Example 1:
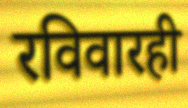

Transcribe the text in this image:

रविवारही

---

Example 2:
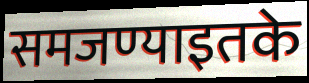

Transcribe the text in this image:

समजण्याइतके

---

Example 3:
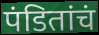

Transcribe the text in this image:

पंडितांचं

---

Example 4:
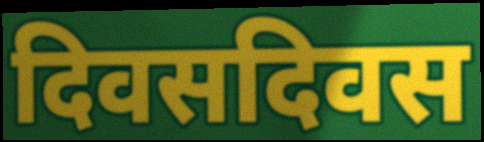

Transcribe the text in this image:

दिवसदिवस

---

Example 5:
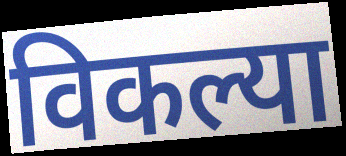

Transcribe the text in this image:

विकल्या